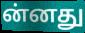
ன்னது